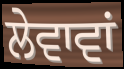
ਲੇਵਾਵਾਂ